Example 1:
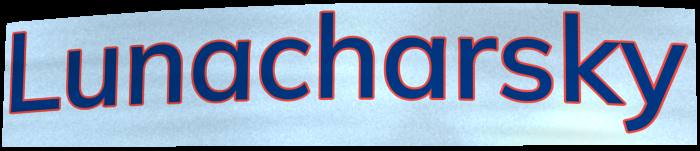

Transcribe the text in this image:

Lunacharsky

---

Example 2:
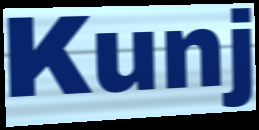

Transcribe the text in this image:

Kunj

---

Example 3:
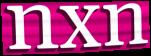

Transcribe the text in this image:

nxn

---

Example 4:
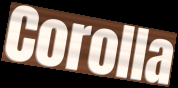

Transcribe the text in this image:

Corolla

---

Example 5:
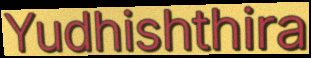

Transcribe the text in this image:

Yudhishthira